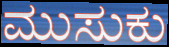
ಮುಸುಕು